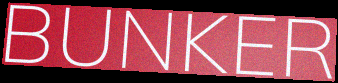
BUNKER